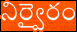
నిర్వైరం